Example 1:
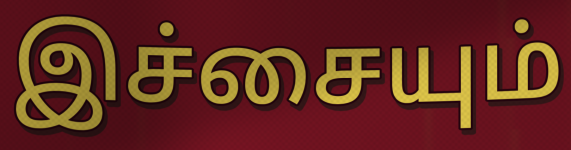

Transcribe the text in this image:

இச்சையும்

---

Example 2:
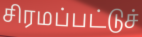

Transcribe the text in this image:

சிரமப்பட்டுச்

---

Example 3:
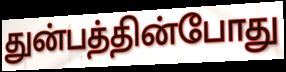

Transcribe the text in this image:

துன்பத்தின்போது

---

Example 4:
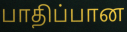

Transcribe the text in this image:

பாதிப்பான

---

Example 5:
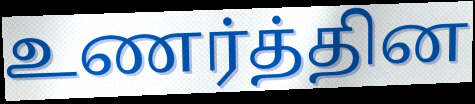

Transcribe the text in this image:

உணர்த்தின